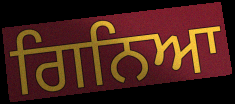
ਗਿਨਿਆ